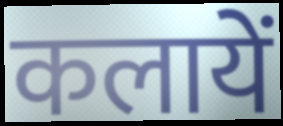
कलायें